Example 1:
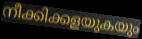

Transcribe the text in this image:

നീക്കിക്കളയുകയും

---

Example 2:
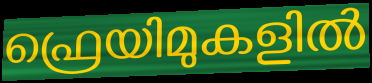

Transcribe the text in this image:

ഫ്രെയിമുകളിൽ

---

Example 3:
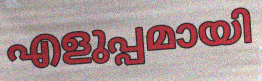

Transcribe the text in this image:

എളുപ്പമായി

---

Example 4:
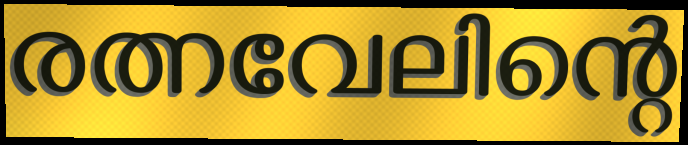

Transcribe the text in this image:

രത്നവേലിന്റെ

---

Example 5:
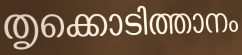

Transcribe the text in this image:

തൃക്കൊടിത്താനം